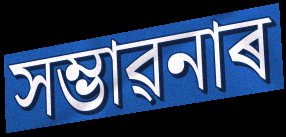
সম্ভাৱনাৰ